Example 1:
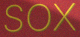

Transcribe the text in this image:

SOX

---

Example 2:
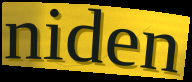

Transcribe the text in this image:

niden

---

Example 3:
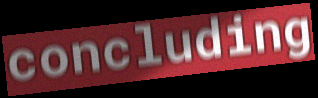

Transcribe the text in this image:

concluding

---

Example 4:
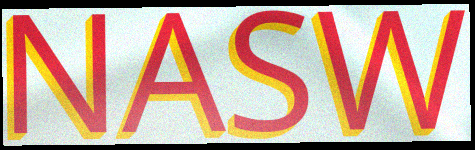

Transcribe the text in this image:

NASW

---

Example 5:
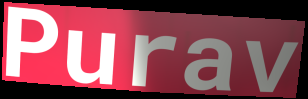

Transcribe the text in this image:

Purav